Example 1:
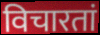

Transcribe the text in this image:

विचारतां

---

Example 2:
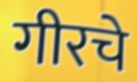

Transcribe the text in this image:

गीरचे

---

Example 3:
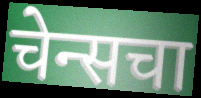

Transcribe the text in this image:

चेन्सचा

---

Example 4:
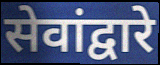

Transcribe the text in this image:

सेवांद्वारे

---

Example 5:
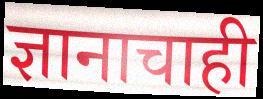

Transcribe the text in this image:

ज्ञानाचाही